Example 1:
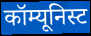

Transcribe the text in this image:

कॉम्यूनिस्ट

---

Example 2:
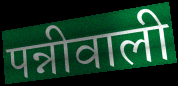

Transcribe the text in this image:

पन्नीवाली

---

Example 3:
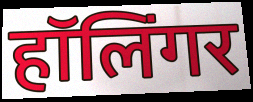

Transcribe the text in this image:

हॉलिंगर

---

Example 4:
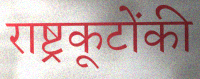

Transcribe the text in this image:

राष्ट्रकूटोंकी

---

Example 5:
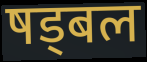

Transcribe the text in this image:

षड्बल